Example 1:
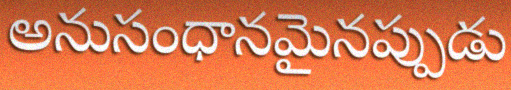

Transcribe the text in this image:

అనుసంధానమైనప్పుడు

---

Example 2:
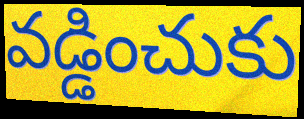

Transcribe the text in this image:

వడ్డించుకు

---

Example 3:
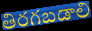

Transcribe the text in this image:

తిరగబడాలి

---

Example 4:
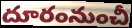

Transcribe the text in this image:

దూరంనుంచీ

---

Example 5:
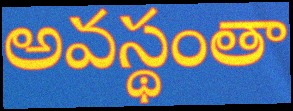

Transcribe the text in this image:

అవస్థంతా